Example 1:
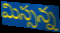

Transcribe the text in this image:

మిస్సన్న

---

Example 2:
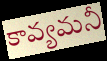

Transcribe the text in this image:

కావ్యమనీ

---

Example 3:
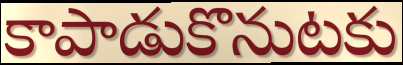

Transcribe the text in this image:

కాపాడుకొనుటకు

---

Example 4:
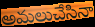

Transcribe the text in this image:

అమలుచేసినా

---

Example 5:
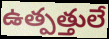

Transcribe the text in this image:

ఉత్పత్తులే